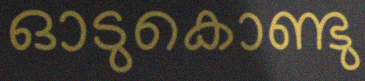
ഓടുകൊണ്ടു